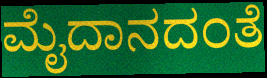
ಮೈದಾನದಂತೆ